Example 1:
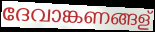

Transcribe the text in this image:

ദേവാങ്കണങ്ങള്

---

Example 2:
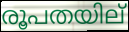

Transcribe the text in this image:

രൂപതയില്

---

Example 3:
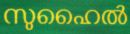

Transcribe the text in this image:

സുഹൈൽ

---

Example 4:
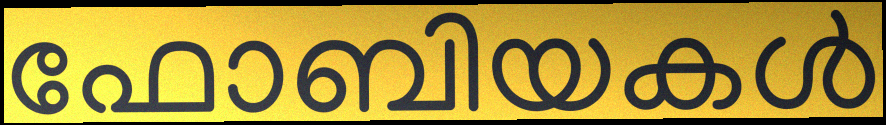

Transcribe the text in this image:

ഫോബിയകൾ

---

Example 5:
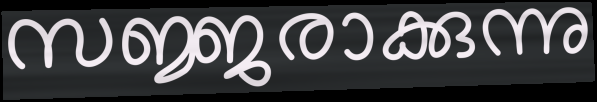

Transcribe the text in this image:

സജ്ജരാക്കുന്നു